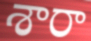
శారా